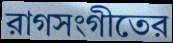
রাগসংগীতের